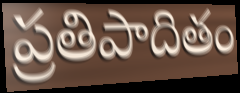
ప్రతిపాదితం